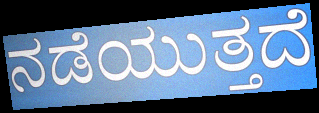
ನಡೆಯುತ್ತದೆ